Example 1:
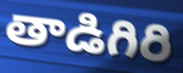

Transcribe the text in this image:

తాడిగిరి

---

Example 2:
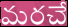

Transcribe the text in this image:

మరచే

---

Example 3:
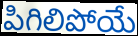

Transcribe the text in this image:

పిగిలిపోయే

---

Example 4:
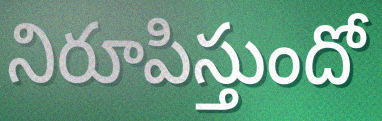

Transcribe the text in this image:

నిరూపిస్తుందో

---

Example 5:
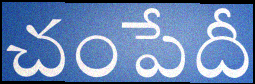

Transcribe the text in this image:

చంపేదీ